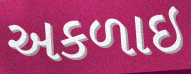
અકળાઇ